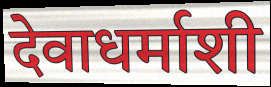
देवाधर्माशी